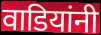
वाडियांनी